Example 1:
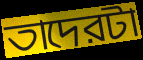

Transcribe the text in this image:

তাদেরটা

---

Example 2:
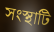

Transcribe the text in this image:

সংস্থাটি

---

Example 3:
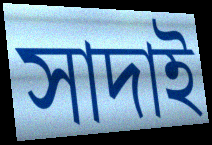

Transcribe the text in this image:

সাদাই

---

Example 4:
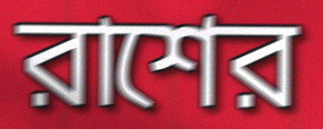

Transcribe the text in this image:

রাশের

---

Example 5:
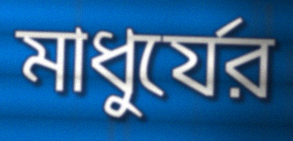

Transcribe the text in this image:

মাধুর্যের